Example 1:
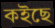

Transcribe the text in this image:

কইছে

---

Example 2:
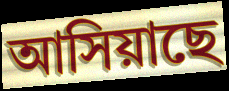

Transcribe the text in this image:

আসিয়াছে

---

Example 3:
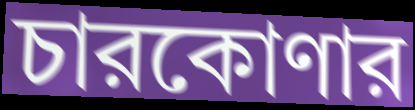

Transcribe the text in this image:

চারকোণার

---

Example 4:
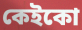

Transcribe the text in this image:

কেইকো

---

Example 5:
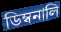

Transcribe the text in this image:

ডিম্বনালি